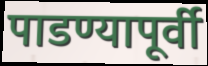
पाडण्यापूर्वी